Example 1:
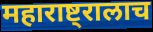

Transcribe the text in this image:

महाराष्ट्रालाच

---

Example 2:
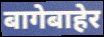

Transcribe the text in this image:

बागेबाहेर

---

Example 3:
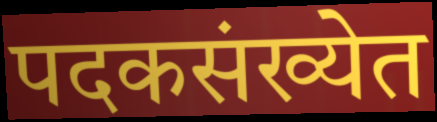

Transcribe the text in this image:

पदकसंख्येत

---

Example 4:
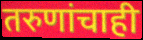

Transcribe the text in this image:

तरुणांचाही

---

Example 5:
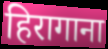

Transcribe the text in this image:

हिरागाना